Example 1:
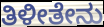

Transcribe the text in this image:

ತಿಳೀತೇನು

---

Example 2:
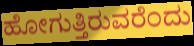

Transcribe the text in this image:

ಹೋಗುತ್ತಿರುವರೆಂದು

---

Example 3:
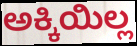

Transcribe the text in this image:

ಅಕ್ಕಿಯಿಲ್ಲ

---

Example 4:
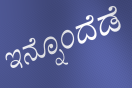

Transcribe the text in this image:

ಇನ್ನೊಂದೆಡೆ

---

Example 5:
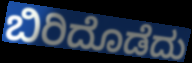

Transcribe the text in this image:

ಬಿರಿದೊಡೆದು